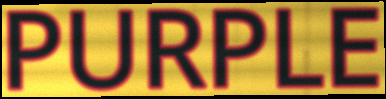
PURPLE